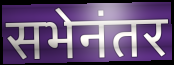
सभेनंतर